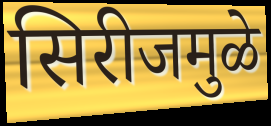
सिरीजमुळे